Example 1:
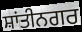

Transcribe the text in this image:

ਸ਼ਾਂਤੀਨਗਰ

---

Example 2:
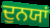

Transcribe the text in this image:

ਦੁਨਯਾਂ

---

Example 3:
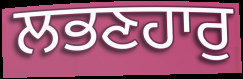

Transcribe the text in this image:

ਲਭਣਹਾਰੁ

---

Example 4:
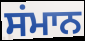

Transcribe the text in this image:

ਸਂਮਾਨ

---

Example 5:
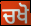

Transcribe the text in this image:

ਚਖੋ